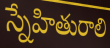
స్నేహితురాలి